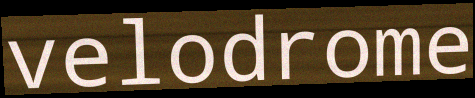
velodrome